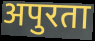
अपुरता